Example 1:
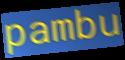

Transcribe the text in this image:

pambu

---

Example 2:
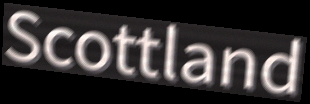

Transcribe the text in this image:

Scottland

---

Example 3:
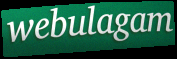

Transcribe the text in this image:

webulagam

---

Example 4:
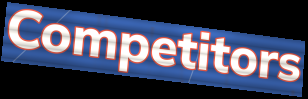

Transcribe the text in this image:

Competitors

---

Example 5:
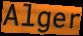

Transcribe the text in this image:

Alger